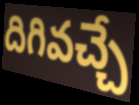
దిగివచ్చే